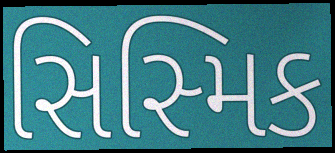
સિસ્મિક